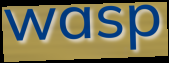
wasp